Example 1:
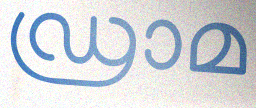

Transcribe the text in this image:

ഡ്രാമ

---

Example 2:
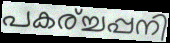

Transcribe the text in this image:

പകര്ച്ചപ്പനി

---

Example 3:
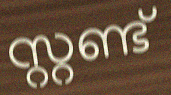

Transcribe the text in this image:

സ്റ്റണ്ട്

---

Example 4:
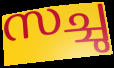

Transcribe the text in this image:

സച്ചു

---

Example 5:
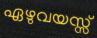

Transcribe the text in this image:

ഏഴുവയസ്സ്